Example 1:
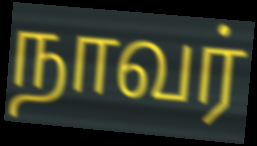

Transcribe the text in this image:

நாவர்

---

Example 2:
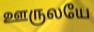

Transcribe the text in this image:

ஊருலயே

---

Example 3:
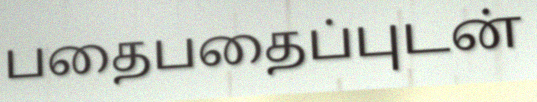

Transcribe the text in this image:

பதைபதைப்புடன்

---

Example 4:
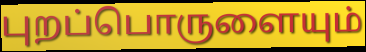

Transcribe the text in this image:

புறப்பொருளையும்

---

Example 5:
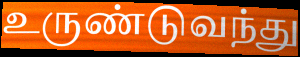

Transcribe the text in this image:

உருண்டுவந்து